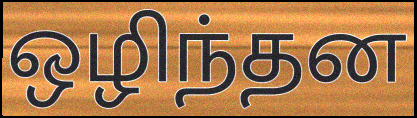
ஒழிந்தன